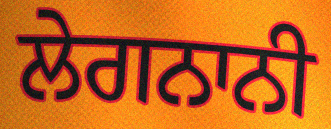
ਲੇਗਨਾਨੀ